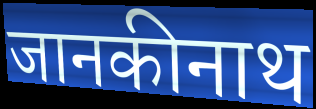
जानकीनाथ